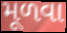
મૂળવા